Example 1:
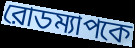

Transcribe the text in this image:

রোডম্যাপকে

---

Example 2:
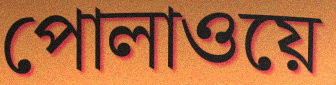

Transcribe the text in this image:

পোলাওয়ে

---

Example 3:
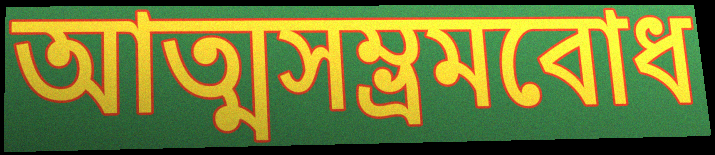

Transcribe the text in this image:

আত্মসম্ভ্রমবোধ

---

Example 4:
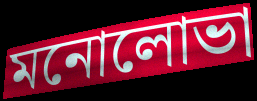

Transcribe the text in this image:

মনোলোভা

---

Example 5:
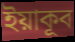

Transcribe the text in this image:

ইয়াকূব